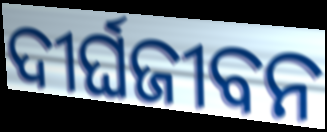
ଦୀର୍ଘଜୀବନ